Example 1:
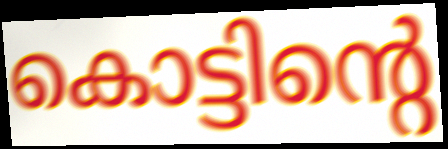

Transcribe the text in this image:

കൊട്ടിന്റെ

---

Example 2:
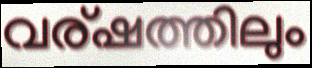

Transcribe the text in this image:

വര്ഷത്തിലും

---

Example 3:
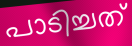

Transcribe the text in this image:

പാടിച്ചത്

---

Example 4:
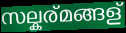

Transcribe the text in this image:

സല്കര്മങ്ങള്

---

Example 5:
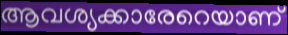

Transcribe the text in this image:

ആവശ്യക്കാരേറെയാണ്